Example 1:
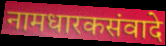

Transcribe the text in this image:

नामधारकसंवादे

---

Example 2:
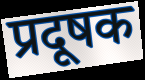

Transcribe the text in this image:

प्रदूषक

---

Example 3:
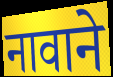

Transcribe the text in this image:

नावाने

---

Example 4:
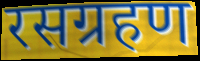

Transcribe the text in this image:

रसग्रहण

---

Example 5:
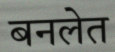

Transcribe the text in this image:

बनलेत